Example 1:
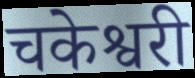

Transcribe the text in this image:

चकेश्वरी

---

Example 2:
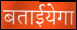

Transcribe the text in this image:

बताईयेगा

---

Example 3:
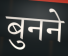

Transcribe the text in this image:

बुनने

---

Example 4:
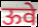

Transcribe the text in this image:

ऊवे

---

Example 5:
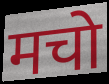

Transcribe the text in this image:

मचो